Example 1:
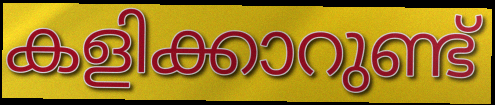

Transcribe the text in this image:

കളിക്കാറുണ്ട്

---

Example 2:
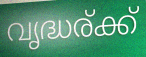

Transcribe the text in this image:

വൃദ്ധര്ക്ക്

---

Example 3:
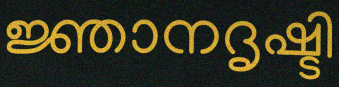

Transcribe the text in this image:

ജ്ഞാനദൃഷ്ടി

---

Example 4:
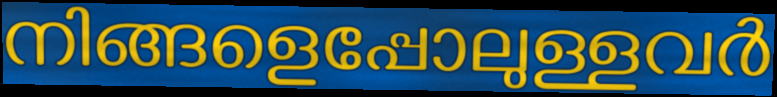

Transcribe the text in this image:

നിങ്ങളെപ്പോലുള്ളവർ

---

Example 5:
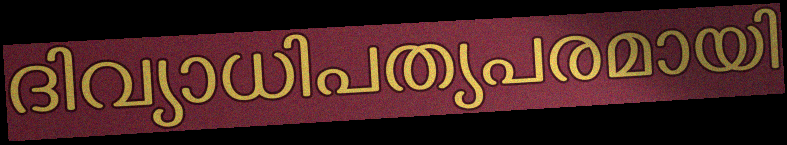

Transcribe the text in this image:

ദിവ്യാധിപത്യപരമായി